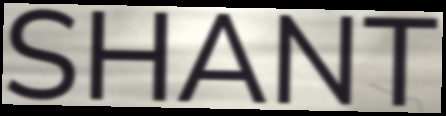
SHANT